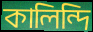
কালিন্দি